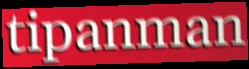
tipanman